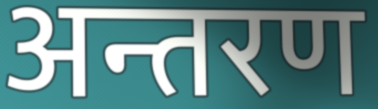
अन्तरण